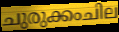
ചുരുക്കംചില